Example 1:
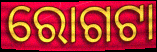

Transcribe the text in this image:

ରୋଗଟା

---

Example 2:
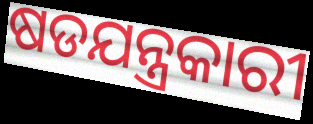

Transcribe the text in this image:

ଷଡଯନ୍ତ୍ରକାରୀ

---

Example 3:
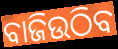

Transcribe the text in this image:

ବାଜିଉଠିବ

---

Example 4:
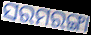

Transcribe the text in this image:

ସରମରଙ୍ଗା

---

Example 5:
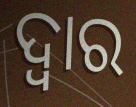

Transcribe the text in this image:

ଦ୍ବାର